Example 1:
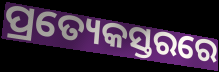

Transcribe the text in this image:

ପ୍ରତ୍ୟେକସ୍ତରରେ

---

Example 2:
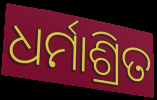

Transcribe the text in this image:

ଧର୍ମାଶ୍ରିତ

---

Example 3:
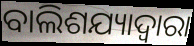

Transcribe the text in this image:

ବାଲିଶଯ୍ୟାଦ୍ଵାରା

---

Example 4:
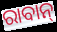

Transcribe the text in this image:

ରାବାନ୍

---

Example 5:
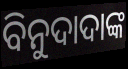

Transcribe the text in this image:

ବିନୁଦାଦାଙ୍କ